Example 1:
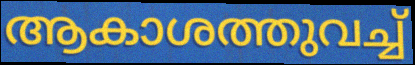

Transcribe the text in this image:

ആകാശത്തുവച്ച്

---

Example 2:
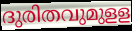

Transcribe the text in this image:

ദുരിതവുമുളള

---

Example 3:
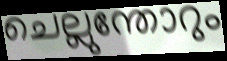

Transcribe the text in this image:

ചെല്ലുന്തോറും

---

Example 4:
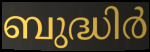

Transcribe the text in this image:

ബുദ്ധിർ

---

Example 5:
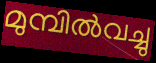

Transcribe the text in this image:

മുമ്പിൽവച്ചു